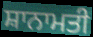
ਸ਼ਾਨਾਮਤੀ